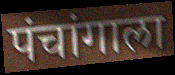
पंचांगाला